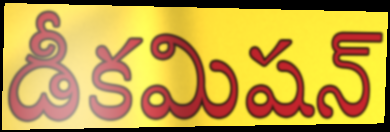
డీకమిషన్